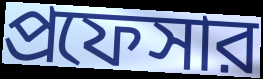
প্রফেসার